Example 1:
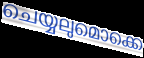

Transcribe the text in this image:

ചെയ്യലുമൊക്കെ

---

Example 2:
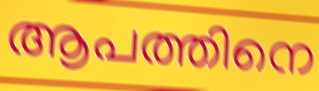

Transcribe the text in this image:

ആപത്തിനെ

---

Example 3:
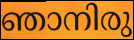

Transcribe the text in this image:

ഞാനിരു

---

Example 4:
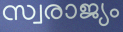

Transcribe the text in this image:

സ്വരാജ്യം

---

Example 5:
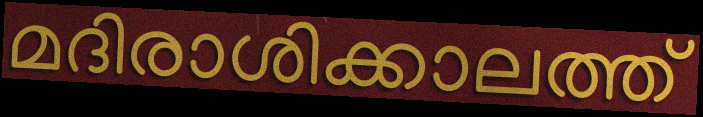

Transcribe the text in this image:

മദിരാശിക്കാലത്ത്